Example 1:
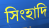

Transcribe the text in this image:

সিংহাদি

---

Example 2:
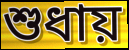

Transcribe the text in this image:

শুধায়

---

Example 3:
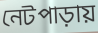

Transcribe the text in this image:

নেটপাড়ায়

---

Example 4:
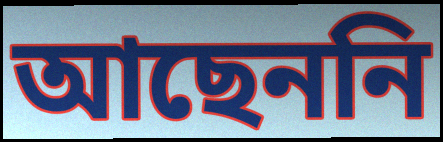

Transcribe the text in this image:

আছেননি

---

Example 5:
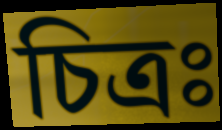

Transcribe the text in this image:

চিত্রঃ